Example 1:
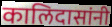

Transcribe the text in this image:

कालिदासांनी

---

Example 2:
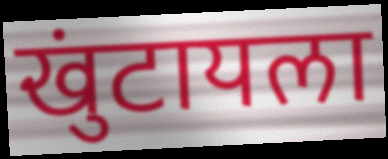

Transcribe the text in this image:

खुंटायला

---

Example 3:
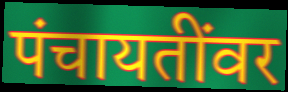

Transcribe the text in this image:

पंचायतींवर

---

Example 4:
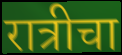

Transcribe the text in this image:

रात्रीचा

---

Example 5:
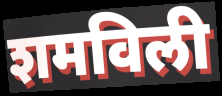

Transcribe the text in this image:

शमविली